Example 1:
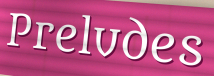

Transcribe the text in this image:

Preludes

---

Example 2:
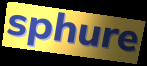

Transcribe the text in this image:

sphure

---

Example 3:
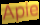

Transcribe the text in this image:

Apie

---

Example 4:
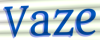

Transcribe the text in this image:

Vaze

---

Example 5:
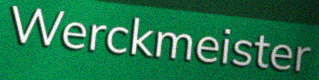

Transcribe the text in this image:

Werckmeister